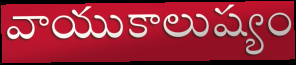
వాయుకాలుష్యం